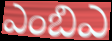
ఎంబిఎ